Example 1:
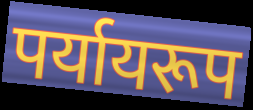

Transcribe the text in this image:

पर्यायरूप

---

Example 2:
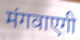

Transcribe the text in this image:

मंगवाएगी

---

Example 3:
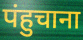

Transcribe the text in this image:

पंहुचाना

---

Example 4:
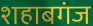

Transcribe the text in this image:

शहाबगंज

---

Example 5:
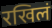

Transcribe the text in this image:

रखिलं